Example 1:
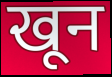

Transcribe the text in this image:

खून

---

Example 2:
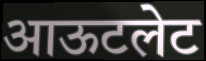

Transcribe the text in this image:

आऊटलेट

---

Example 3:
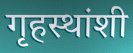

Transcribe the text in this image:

गृहस्थांशी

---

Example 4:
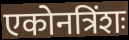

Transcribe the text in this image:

एकोनत्रिंशः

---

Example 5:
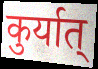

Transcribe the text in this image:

कुर्यात्